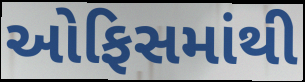
ઓફિસમાંથી